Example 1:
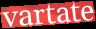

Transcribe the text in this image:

vartate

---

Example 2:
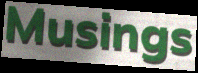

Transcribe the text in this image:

Musings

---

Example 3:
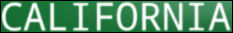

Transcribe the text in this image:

CALIFORNIA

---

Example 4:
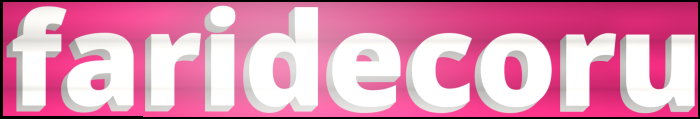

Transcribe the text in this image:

faridecoru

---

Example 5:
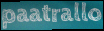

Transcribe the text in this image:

paatrallo